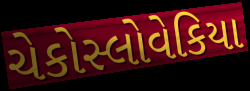
ચેકોસ્લોવેકિયા